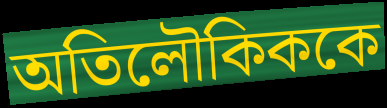
অতিলৌকিককে